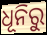
ଧୂନିରୁ